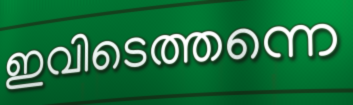
ഇവിടെത്തന്നെ